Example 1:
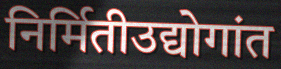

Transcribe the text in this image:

निर्मितीउद्योगांत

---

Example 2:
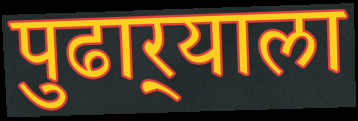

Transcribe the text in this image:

पुढार्याला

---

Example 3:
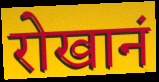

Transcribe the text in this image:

रोखानं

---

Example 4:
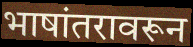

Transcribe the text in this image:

भाषांतरावरून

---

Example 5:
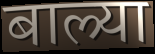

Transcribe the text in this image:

बाल्या